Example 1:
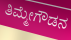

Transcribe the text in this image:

ತಿಮ್ಮೇಗೌಡನ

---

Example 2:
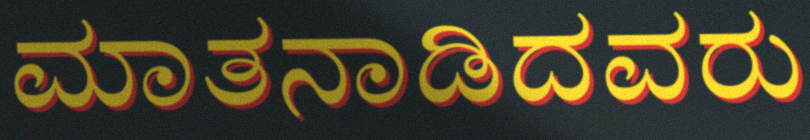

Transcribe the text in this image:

ಮಾತನಾಡಿದವರು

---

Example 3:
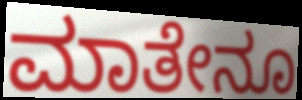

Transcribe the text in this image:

ಮಾತೇನೂ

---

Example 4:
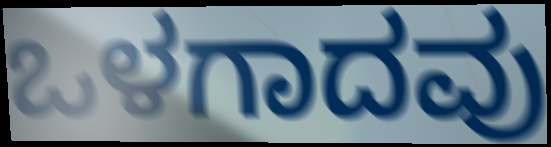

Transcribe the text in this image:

ಒಳಗಾದವು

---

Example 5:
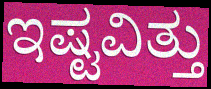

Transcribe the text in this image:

ಇಷ್ಟವಿತ್ತು